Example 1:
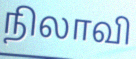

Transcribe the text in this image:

நிலாவி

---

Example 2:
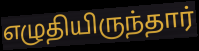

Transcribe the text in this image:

எழுதியிருந்தார்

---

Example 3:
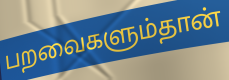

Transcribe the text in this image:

பறவைகளும்தான்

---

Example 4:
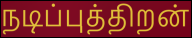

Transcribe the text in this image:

நடிப்புத்திறன்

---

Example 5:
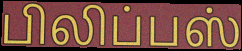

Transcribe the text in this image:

பிலிப்பஸ்